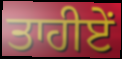
ਤਾਹੀਏਂ